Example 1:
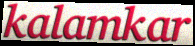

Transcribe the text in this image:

kalamkar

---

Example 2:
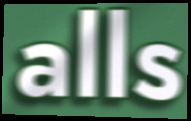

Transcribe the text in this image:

alls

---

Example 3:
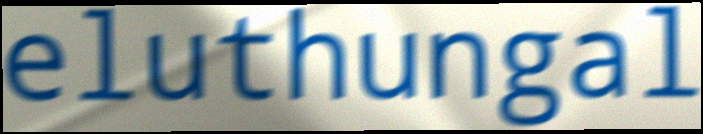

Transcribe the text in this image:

eluthungal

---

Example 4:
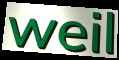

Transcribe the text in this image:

weil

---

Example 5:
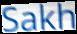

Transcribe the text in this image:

Sakh